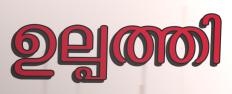
ഉല്പത്തി